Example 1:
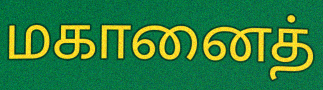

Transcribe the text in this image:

மகானைத்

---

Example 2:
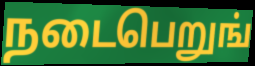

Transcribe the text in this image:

நடைபெறுங்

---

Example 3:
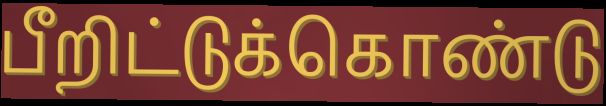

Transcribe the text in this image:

பீறிட்டுக்கொண்டு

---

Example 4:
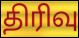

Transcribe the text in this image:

திரிவு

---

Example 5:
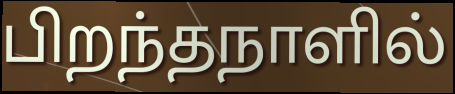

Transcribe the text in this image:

பிறந்தநாளில்